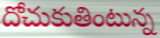
దోచుకుతింటున్న